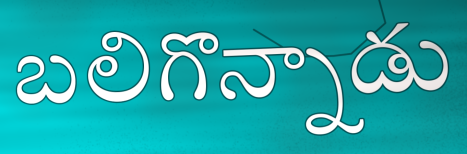
బలిగొన్నాడు